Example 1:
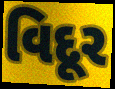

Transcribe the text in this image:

વિદૂર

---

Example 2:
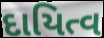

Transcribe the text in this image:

દાયિત્વ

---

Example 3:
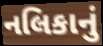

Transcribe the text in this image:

નલિકાનું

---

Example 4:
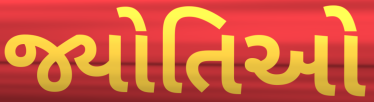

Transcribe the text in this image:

જ્યોતિઓ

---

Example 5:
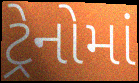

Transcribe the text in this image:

ટ્રેનોમાં